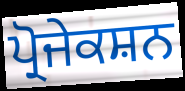
ਪ੍ਰੋਜੇਕਸ਼ਨ